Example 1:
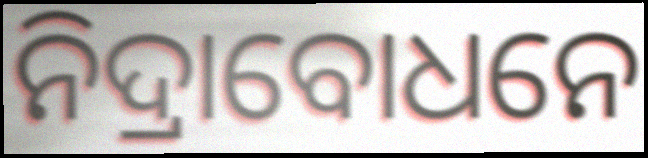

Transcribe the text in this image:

ନିଦ୍ରାବୋଧନେ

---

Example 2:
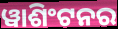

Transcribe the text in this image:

ୱାଶିଂଟନର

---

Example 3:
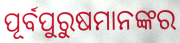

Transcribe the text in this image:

ପୂର୍ବପୁରୁଷମାନଙ୍କର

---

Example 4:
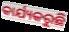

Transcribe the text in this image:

କାର୍ଯ୍ୟକରୁଛି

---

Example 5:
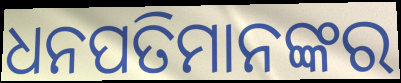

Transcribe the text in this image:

ଧନପତିମାନଙ୍କର